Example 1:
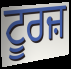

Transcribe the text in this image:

ਟੂਰਜ਼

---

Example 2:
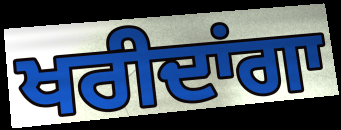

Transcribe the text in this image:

ਖਰੀਦਾਂਗਾ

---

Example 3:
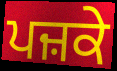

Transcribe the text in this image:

ਪਜ਼ਕੇ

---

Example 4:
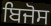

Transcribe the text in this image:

ਬਿਜੋਸ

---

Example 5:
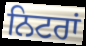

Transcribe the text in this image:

ਨਿਟਰਾਂ